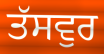
ਤੱਸਵੁਰ